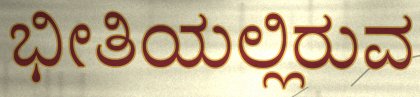
ಭೀತಿಯಲ್ಲಿರುವ